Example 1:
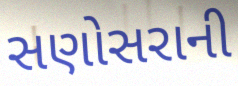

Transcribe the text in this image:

સણોસરાની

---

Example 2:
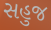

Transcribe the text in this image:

સહુજ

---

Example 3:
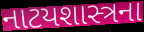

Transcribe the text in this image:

નાટયશાસ્ત્રના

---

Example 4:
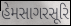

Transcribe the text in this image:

હેમસાગરસૂરિ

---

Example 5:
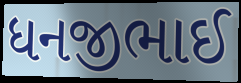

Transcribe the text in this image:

ધનજીભાઈ